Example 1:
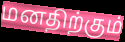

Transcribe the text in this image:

மனதிற்கும்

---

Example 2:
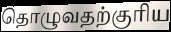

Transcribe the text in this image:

தொழுவதற்குரிய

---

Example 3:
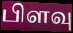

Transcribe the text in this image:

பிளவு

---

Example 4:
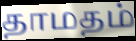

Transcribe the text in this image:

தாமதம்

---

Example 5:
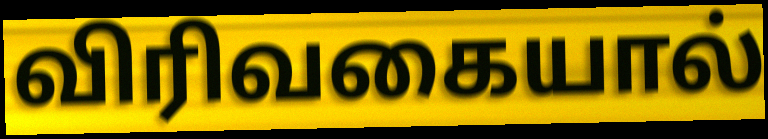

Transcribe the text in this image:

விரிவகையால்